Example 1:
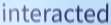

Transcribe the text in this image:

interacted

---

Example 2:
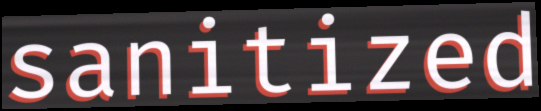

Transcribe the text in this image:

sanitized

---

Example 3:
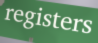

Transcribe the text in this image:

registers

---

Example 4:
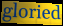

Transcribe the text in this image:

gloried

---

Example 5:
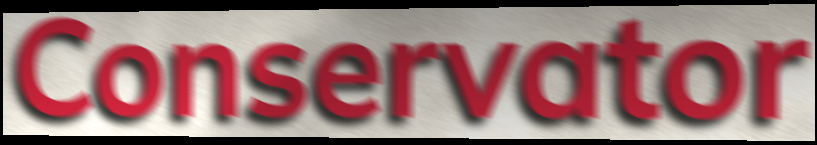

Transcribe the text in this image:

Conservator